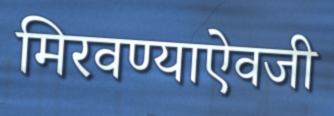
मिरवण्याऐवजी